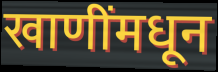
खाणींमधून